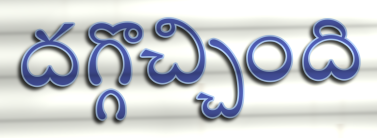
దగ్గొచ్చింది